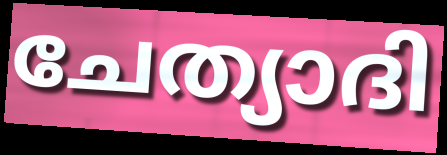
ചേത്യാദി